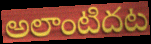
అలాంటిదట